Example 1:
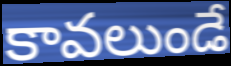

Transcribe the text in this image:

కావలుండే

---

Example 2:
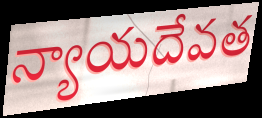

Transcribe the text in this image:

న్యాయదేవత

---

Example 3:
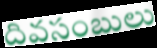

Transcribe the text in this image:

దివసంబులు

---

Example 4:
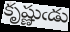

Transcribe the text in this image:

కృష్ణుఁడు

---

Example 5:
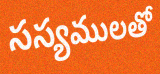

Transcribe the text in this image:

సస్యములతో